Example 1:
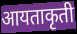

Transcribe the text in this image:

आयताकृती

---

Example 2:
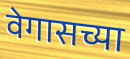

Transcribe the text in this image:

वेगासच्या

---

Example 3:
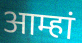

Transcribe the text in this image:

आम्हां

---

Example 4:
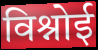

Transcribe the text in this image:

विश्नोई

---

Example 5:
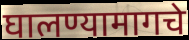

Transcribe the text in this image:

घालण्यामागचे